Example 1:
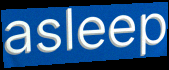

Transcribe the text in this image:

asleep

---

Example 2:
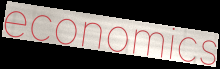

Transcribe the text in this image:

economics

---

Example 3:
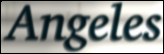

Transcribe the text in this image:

Angeles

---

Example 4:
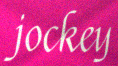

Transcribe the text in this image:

jockey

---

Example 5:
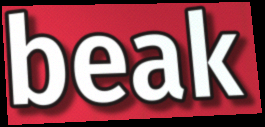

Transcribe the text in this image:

beak